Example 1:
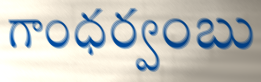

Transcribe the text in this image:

గాంధర్వంబు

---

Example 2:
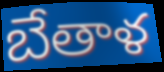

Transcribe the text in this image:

బేతాళ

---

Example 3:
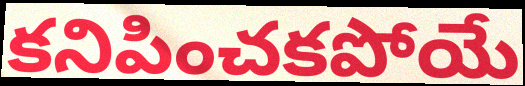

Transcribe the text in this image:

కనిపించకపోయే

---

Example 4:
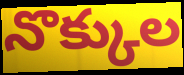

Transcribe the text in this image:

నొక్కుల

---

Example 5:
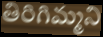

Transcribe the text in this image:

తిరిగిమ్మని